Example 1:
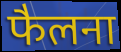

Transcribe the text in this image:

फैलना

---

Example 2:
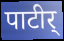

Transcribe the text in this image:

पाटीर्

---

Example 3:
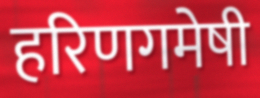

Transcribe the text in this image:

हरिणगमेषी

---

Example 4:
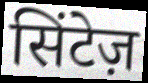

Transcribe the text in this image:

सिंटेज़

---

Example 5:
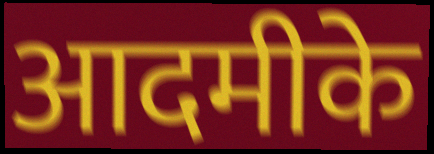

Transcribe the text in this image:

आदमीके